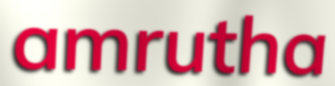
amrutha